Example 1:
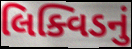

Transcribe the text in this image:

લિક્વિડનું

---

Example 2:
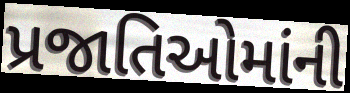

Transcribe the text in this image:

પ્રજાતિઓમાંની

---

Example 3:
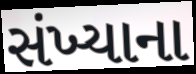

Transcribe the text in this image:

સંખ્યાના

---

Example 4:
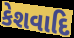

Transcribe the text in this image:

કેશવાદિ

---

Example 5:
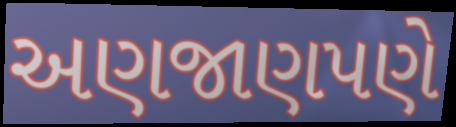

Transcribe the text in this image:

અણજાણપણે